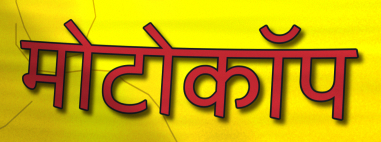
मोटोकॉप